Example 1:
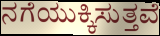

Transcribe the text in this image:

ನಗೆಯುಕ್ಕಿಸುತ್ತವೆ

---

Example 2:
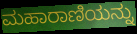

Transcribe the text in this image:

ಮಹಾರಾಣಿಯನ್ನು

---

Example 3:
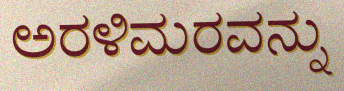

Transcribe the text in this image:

ಅರಳಿಮರವನ್ನು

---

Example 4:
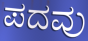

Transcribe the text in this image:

ಪದವು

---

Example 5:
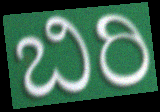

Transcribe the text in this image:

ಬಿರಿ